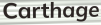
Carthage